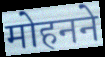
मोहनने